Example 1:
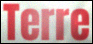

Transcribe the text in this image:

Terre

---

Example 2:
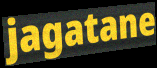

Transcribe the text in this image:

jagatane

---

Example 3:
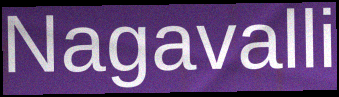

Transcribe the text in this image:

Nagavalli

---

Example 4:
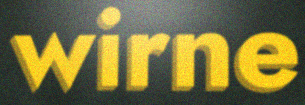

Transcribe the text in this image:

wirne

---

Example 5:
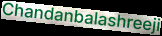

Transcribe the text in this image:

Chandanbalashreeji